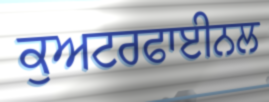
ਕੁਅਟਰਫਾਈਨਲ